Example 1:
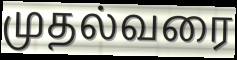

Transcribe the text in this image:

முதல்வரை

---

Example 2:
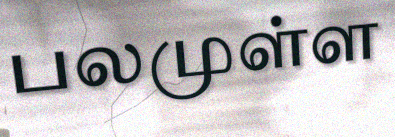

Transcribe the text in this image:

பலமுள்ள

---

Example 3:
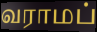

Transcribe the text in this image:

வராமப்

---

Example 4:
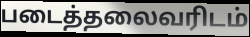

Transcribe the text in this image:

படைத்தலைவரிடம்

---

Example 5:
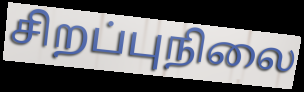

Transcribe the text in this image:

சிறப்புநிலை